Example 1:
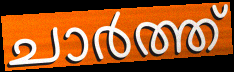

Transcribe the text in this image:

ചാർത്ത്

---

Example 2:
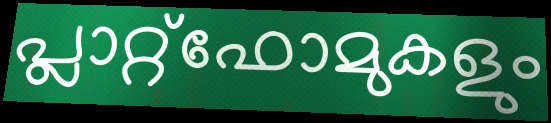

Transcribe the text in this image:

പ്ലാറ്റ്ഫോമുകളും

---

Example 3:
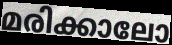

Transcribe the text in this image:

മരിക്കാലോ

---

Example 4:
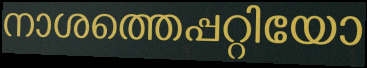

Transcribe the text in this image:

നാശത്തെപ്പറ്റിയോ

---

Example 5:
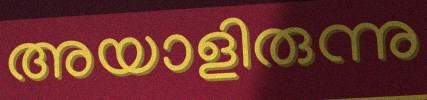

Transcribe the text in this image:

അയാളിരുന്നു